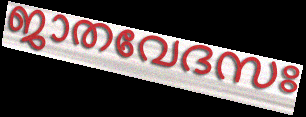
ജാതവേദസഃ